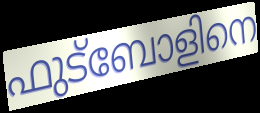
ഫുട്ബോളിനെ